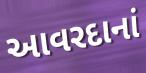
આવરદાનાં